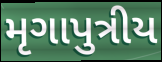
મૃગાપુત્રીય